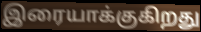
இரையாக்குகிறது